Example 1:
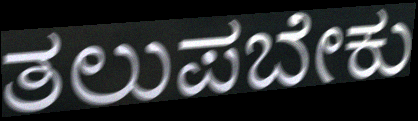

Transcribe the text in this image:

ತಲುಪಬೇಕು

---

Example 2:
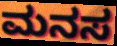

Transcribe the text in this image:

ಮನಸ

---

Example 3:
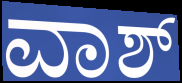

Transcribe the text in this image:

ವಾಶ್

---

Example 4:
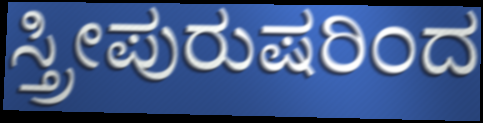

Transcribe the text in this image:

ಸ್ತ್ರೀಪುರುಷರಿಂದ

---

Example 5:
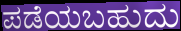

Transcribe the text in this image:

ಪಡೆಯಬಹುದು